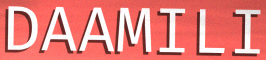
DAAMILI